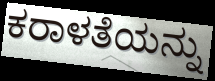
ಕರಾಳತೆಯನ್ನು